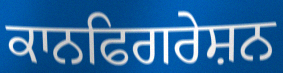
ਕਾਨਫਿਗਰੇਸ਼ਨ